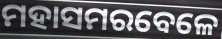
ମହାସମରବେଳେ